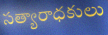
సత్యారాధకులు